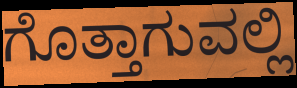
ಗೊತ್ತಾಗುವಲ್ಲಿ